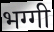
भग्गी